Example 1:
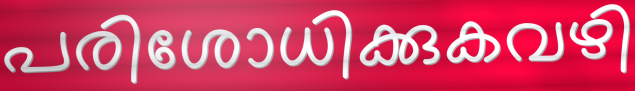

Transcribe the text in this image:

പരിശോധിക്കുകവഴി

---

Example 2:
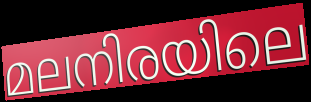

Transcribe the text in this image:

മലനിരയിലെ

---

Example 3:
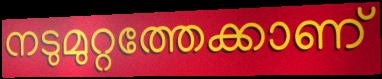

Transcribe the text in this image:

നടുമുറ്റത്തേക്കാണ്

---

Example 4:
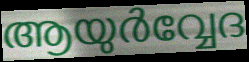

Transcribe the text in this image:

ആയുർവ്വേദ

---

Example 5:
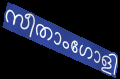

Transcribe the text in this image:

സീതാംഗോളി